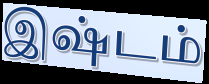
இஷ்டம்